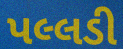
પલ્લડી